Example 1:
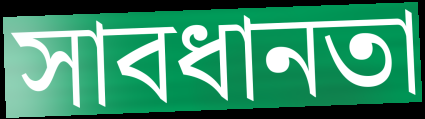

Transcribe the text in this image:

সাবধানতা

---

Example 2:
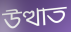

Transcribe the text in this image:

উত্থাত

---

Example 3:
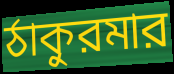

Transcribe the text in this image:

ঠাকুরমার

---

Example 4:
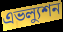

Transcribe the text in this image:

এভল্যুশন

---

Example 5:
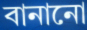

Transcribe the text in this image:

বানানো